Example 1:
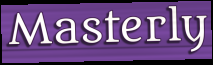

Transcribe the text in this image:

Masterly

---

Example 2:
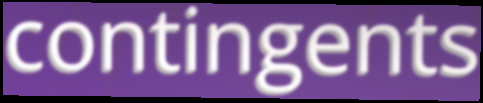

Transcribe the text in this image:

contingents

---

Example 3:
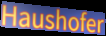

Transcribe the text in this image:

Haushofer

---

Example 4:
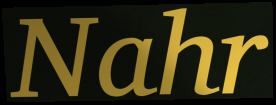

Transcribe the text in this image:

Nahr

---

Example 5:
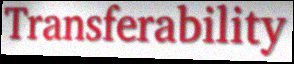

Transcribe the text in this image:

Transferability